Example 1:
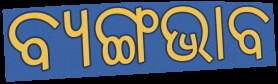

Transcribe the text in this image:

ବ୍ୟଙ୍ଗଭାବ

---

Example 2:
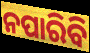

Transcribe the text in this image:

ନପାରିବି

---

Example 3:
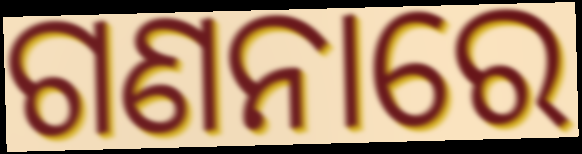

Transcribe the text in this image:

ଗଣନାରେ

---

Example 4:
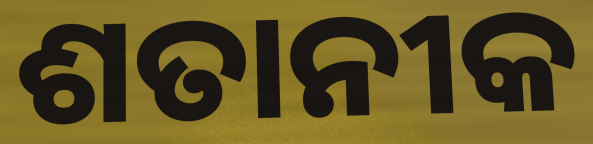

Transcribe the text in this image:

ଶତାନୀକ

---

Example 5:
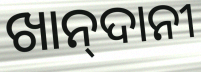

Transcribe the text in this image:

ଖାନ୍‍ଦାନୀ